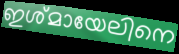
ഇശ്മായേലിനെ